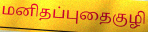
மனிதப்புதைகுழி